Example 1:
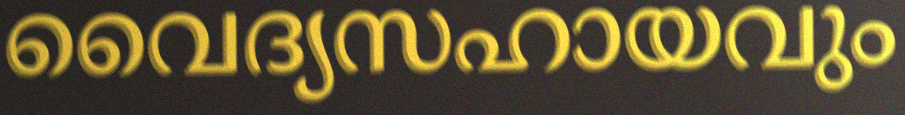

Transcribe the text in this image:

വൈദ്യസഹായവും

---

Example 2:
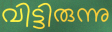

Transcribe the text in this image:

വിട്ടിരുന്നു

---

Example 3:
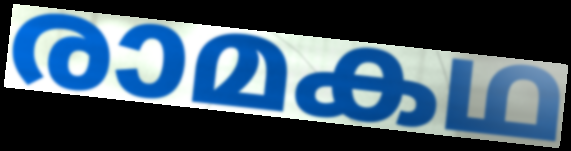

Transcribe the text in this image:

രാമകഥ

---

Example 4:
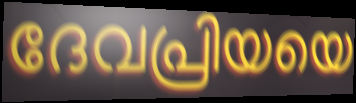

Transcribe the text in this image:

ദേവപ്രിയയെ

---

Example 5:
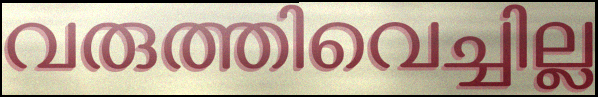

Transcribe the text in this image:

വരുത്തിവെച്ചില്ല